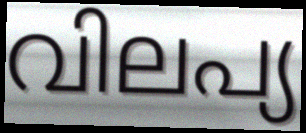
വിലപ്യ